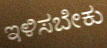
ಇಳಿಸಬೇಕು